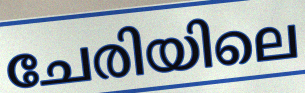
ചേരിയിലെ